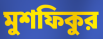
মুশফিকুর